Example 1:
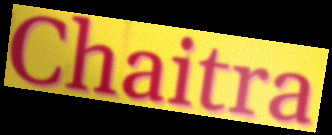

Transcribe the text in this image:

Chaitra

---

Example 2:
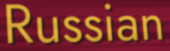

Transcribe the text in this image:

Russian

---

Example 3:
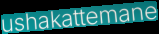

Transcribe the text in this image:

ushakattemane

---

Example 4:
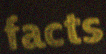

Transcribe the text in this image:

facts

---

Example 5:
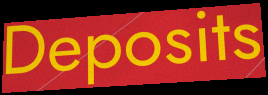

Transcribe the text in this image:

Deposits